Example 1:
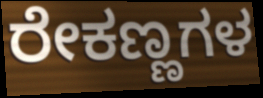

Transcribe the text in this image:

ರೇಕಣ್ಣಗಳ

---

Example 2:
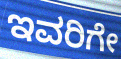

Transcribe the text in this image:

ಇವರಿಗೇ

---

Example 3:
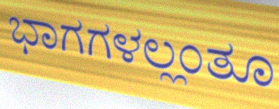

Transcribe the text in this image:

ಭಾಗಗಳಲ್ಲಂತೂ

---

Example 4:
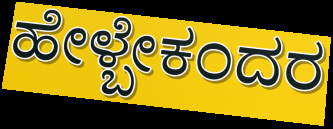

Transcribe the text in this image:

ಹೇಳ್ಬೇಕಂದರ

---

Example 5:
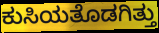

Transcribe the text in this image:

ಕುಸಿಯತೊಡಗಿತ್ತು